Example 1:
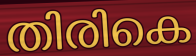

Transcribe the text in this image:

തിരികെ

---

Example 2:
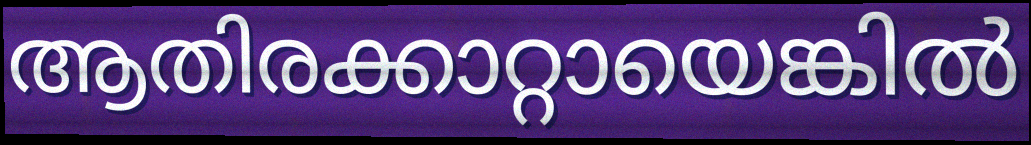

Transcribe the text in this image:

ആതിരക്കാറ്റായെങ്കിൽ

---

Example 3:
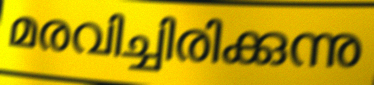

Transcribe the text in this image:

മരവിച്ചിരിക്കുന്നു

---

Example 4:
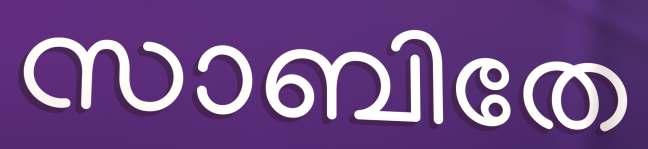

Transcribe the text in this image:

സാബിതേ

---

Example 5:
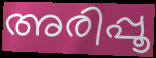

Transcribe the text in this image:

അരിപ്പൂ